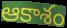
ఆకాశం